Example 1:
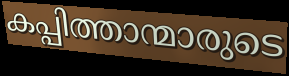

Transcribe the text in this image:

കപ്പിത്താന്മാരുടെ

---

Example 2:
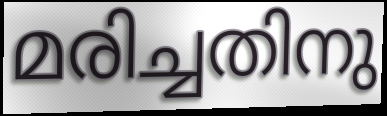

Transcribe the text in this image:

മരിച്ചതിനു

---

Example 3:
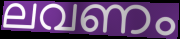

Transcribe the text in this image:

ലവണം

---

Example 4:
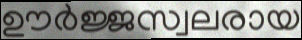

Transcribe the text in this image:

ഊർജ്ജസ്വലരായ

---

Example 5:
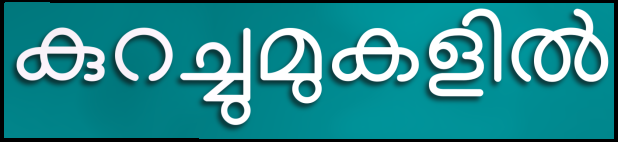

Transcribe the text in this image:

കുറച്ചുമുകളിൽ